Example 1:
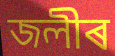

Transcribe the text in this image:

জলীৰ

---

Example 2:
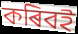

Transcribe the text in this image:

কৰিবই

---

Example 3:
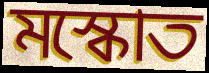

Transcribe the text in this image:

মস্কোত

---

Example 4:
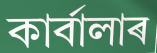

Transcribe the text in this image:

কাৰ্বালাৰ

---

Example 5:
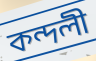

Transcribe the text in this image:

কন্দলী